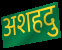
अशहदु